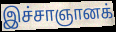
இச்சாஞானக்